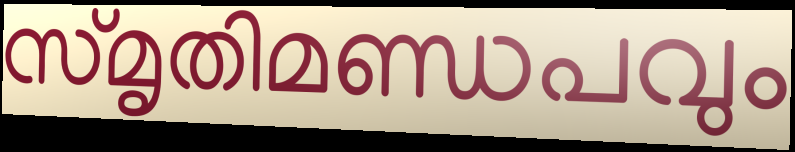
സ്മൃതിമണ്ഡപവും